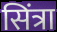
सिंत्रा